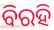
ବିରହି